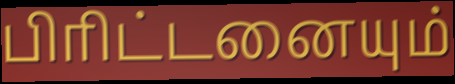
பிரிட்டனையும்